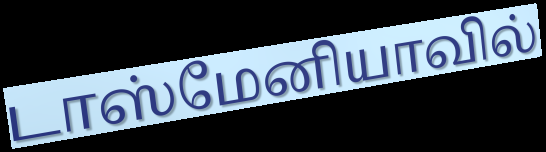
டாஸ்மேனியாவில்